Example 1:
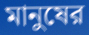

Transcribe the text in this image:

মানুষের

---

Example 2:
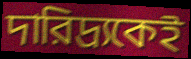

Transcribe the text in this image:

দারিদ্র্যকেই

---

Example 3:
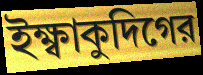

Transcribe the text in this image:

ইক্ষ্বাকুদিগের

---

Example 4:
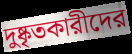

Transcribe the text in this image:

দুষ্কৃতকারীদের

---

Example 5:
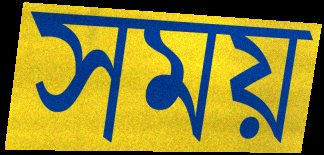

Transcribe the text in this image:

সময়